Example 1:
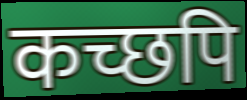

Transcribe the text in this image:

कच्छपि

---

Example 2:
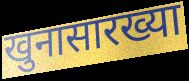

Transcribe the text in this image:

खुनासारख्या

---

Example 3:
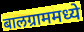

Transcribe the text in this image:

बालग्राममध्ये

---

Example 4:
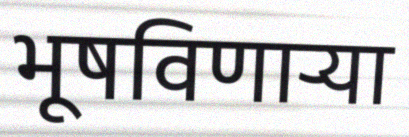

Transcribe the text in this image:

भूषविणार्‍या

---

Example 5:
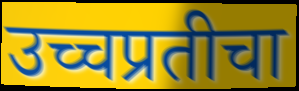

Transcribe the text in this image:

उच्चप्रतीचा